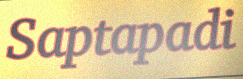
Saptapadi